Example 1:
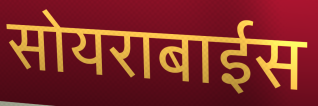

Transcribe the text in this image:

सोयराबाईस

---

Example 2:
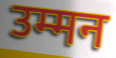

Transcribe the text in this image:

उम्मन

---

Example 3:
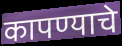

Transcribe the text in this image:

कापण्याचे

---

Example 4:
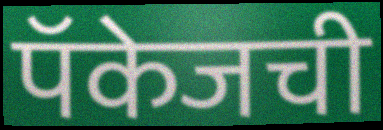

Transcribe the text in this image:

पॅकेजची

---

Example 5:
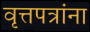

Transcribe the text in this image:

वृत्तपत्रांना